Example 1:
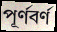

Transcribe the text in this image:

পূর্ণবর্ণ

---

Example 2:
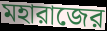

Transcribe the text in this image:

মহারাজের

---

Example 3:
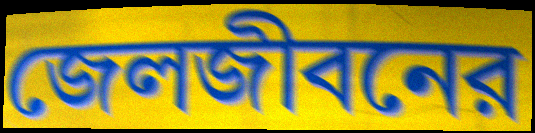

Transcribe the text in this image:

জেলজীবনের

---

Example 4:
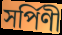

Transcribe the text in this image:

সর্পিণী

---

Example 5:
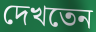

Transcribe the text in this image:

দেখতেন